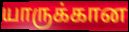
யாருக்கான